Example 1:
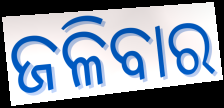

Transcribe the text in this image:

ଜଳିବାର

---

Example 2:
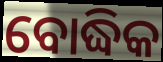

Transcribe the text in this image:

ବୋଦ୍ଧିକ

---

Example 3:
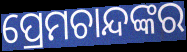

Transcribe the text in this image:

ପ୍ରେମଚାନ୍ଦଙ୍କର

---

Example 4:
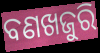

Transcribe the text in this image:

ବଣଖଜୁରି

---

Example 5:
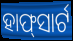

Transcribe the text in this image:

ହାଫ୍‍ସାର୍ଟ